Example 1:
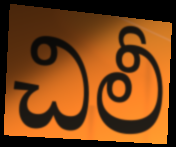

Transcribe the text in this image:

చిలీ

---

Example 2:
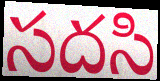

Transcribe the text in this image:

సదసి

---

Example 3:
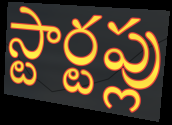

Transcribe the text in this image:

స్టార్టప్లు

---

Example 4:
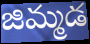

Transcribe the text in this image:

జిమ్మడ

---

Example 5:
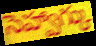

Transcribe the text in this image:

సెహ్వాగ్కు